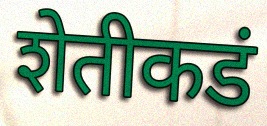
शेतीकडं